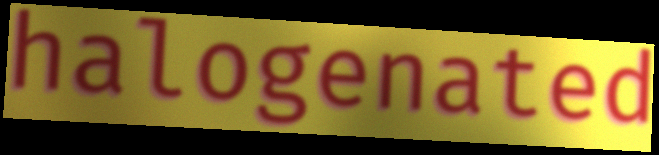
halogenated